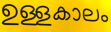
ഉള്ളകാലം